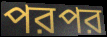
পরপর